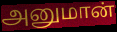
அனுமான்